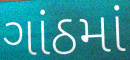
ગાંઠમાં